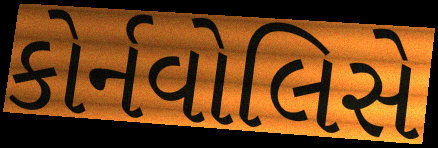
કોર્નવોલિસે